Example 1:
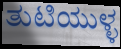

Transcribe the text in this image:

ತುಟಿಯುಳ್ಳ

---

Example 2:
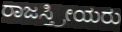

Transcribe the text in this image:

ರಾಜಸ್ತ್ರೀಯರು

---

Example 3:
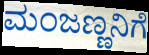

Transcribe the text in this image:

ಮಂಜಣ್ಣನಿಗೆ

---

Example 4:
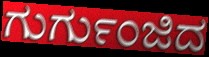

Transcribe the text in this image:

ಗುರ್ಗುಂಜಿದ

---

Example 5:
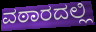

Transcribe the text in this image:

ವಠಾರದಲ್ಲಿ